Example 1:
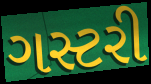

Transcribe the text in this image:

ગસ્ટરી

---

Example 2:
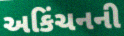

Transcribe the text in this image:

અકિંચનની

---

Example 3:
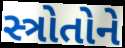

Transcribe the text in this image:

સ્ત્રોતોને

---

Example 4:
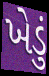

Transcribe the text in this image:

ખેડું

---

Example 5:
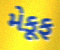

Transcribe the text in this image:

મેકૂફ